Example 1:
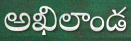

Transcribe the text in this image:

అఖిలాండ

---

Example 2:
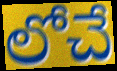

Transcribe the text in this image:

లోచే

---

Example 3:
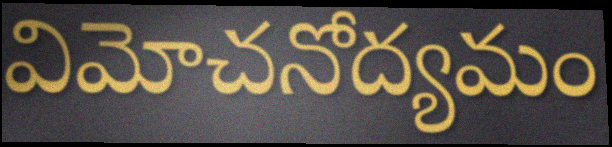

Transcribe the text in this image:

విమోచనోద్యమం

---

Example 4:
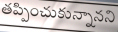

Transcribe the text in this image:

తప్పించుకున్నానని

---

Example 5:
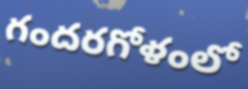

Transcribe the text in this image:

గందరగోళంలో